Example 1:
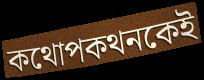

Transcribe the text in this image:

কথোপকথনকেই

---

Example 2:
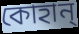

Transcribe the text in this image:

কোহান্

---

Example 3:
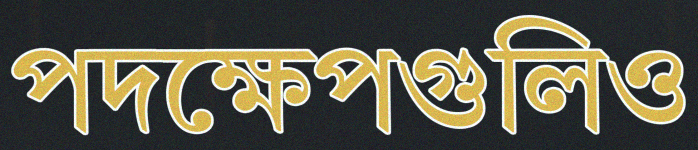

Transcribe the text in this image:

পদক্ষেপগুলিও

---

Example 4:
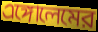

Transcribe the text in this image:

এঙ্গোলেমের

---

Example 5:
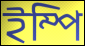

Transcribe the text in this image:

ইম্পি